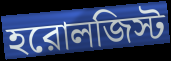
হরোলজিস্ট